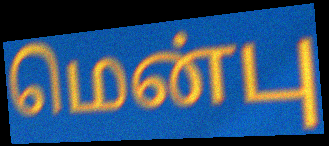
மென்பு